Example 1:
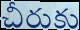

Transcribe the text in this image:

చీరుకు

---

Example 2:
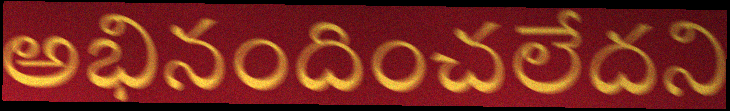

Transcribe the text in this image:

అభినందించలేదని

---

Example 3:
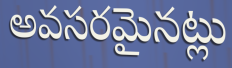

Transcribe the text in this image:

అవసరమైనట్లు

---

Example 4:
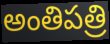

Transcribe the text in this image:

అంతిపత్రి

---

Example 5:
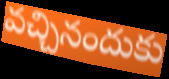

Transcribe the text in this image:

వచ్చినందుకు